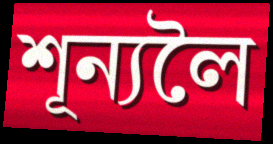
শূন্যলৈ